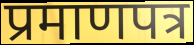
प्रमाणपत्र